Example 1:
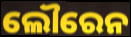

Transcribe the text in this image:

ଲୌରେନ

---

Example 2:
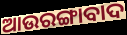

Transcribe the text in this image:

ଆଉରଙ୍ଗାବାଦ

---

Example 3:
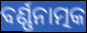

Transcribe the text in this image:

ବର୍ଣ୍ଣନାତ୍ମକ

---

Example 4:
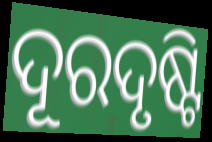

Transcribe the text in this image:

ଦୂରଦୃଷ୍ଟି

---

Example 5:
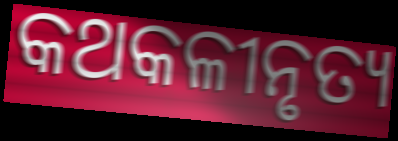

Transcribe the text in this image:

କଥକଳୀନୃତ୍ୟ